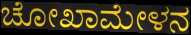
ಚೋಖಾಮೇಳನ